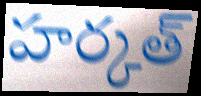
హర్కత్